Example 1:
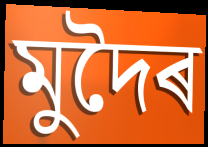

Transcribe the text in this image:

মুদৈৰ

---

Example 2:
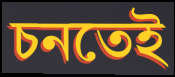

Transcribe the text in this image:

চনতেই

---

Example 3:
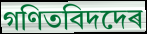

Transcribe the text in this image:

গণিতবিদদেৰ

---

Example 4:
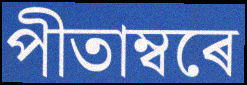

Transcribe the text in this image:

পীতাম্বৰে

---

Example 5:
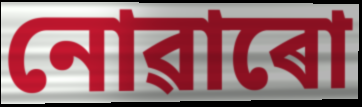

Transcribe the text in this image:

নোৱাৰো